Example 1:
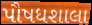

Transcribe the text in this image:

પૌષધશાલા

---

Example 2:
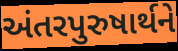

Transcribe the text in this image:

અંતરપુરુષાર્થને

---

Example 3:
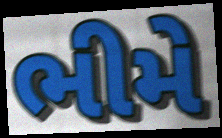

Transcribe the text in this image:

ભીમે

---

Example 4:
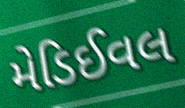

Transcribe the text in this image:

મેડિઈવલ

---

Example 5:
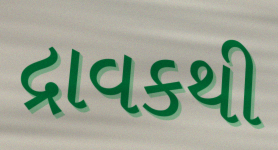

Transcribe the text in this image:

દ્રાવકથી